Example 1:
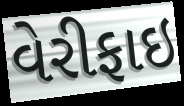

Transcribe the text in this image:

વેરીફાઇ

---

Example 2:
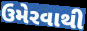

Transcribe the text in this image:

ઉમેરવાથી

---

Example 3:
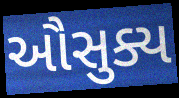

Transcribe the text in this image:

ઔસુક્ય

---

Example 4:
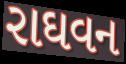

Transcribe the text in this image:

રાઘવન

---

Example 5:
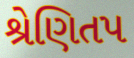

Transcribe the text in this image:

શ્રેણિતપ